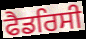
ਫੈਡਰਿਸੀ